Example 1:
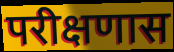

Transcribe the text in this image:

परीक्षणास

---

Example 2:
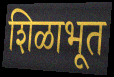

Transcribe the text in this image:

शिळाभूत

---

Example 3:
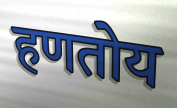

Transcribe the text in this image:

हणतोय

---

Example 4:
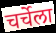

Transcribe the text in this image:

चर्चेला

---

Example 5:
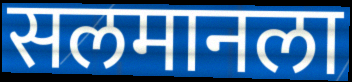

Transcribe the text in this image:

सलमानला